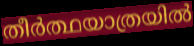
തീർത്ഥയാത്രയിൽ